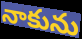
నాకును